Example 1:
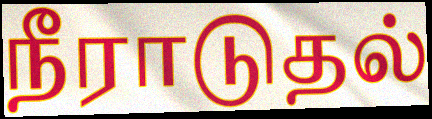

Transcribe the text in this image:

நீராடுதல்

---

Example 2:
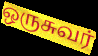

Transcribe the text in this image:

ஒருசுவர்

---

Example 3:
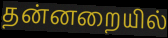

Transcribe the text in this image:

தன்னறையில்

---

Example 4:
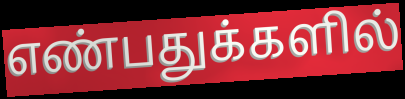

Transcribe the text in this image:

எண்பதுக்களில்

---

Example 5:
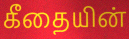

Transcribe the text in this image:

கீதையின்